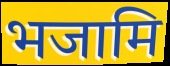
भजामि